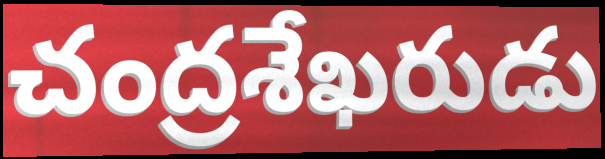
చంద్రశేఖరుడు